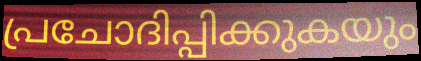
പ്രചോദിപ്പിക്കുകയും